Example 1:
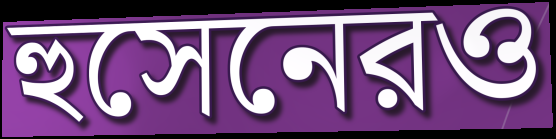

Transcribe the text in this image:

হুসেনেরও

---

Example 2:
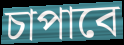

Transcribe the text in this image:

চাপাবে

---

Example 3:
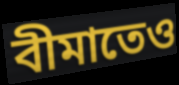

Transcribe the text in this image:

বীমাতেও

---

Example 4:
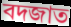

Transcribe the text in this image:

বদজাত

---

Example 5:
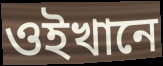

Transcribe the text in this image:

ওইখানে